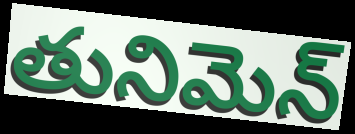
తునిమెన్